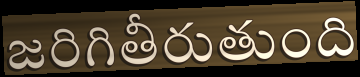
జరిగితీరుతుంది